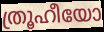
ത്രൂഹീയോ